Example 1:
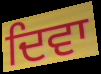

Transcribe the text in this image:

ਦਿਵਾ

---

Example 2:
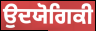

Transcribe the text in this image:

ਉਦਯੋਗਿਕੀ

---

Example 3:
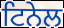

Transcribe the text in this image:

ਟਿਨੇਲ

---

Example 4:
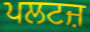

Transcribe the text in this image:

ਪਲਟਜ਼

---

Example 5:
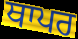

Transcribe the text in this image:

ਥਾਪਰ